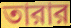
তারার